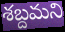
శబ్దమని